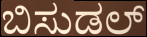
ಬಿಸುಡಲ್